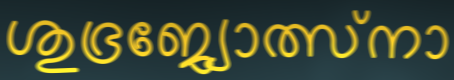
ശുഭ്രജ്യോത്സ്നാ